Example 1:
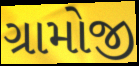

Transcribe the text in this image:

ગ્રામોજી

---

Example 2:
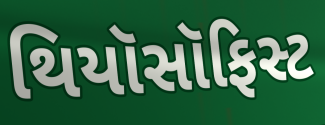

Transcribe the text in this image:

થિયૉસૉફિસ્ટ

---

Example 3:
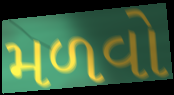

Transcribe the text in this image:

મળવો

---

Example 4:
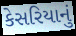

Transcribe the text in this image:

કેસરિયાનું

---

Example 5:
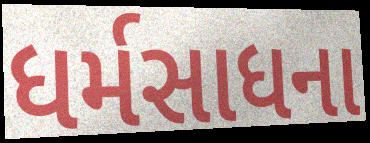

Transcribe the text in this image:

ધર્મસાધના